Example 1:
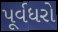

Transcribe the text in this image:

પૂર્વધરો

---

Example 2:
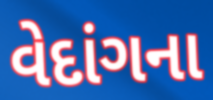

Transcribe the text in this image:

વેદાંગના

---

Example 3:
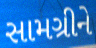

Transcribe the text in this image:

સામગ્રીને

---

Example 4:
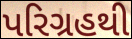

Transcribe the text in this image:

પરિગ્રહથી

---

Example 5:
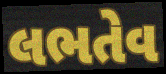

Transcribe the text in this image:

લભતેવ